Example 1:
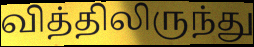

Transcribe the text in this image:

வித்திலிருந்து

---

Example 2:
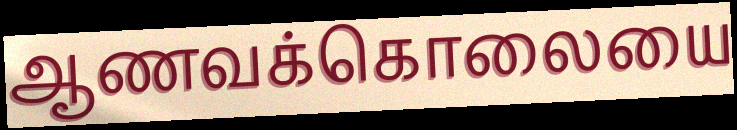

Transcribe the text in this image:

ஆணவக்கொலையை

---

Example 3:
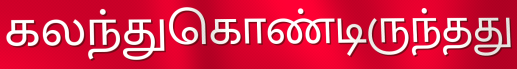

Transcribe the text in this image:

கலந்துகொண்டிருந்தது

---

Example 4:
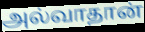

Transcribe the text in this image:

அல்வாதான்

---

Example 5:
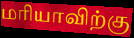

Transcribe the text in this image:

மரியாவிற்கு